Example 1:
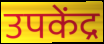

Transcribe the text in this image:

उपकेंद्र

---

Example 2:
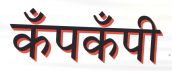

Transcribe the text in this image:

कँपकँपी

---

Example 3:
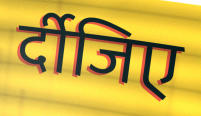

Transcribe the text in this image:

र्दीजिए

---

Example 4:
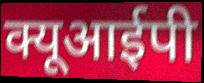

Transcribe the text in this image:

क्यूआईपी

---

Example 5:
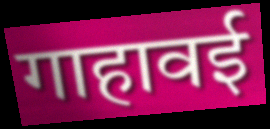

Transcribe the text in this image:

गाहावई